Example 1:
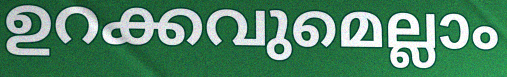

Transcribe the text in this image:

ഉറക്കവുമെല്ലാം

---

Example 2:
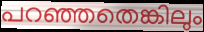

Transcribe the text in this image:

പറഞ്ഞതെങ്കിലും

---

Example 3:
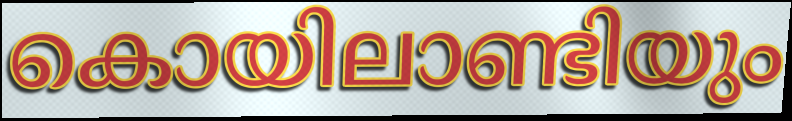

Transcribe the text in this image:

കൊയിലാണ്ടിയും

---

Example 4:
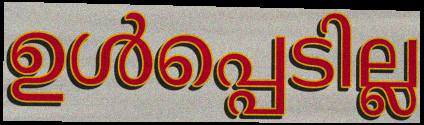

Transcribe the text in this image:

ഉൾപ്പെടില്ല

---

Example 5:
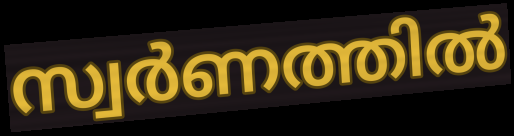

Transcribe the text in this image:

സ്വർണത്തിൽ